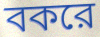
বকরে